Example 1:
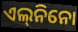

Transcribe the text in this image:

ଏଲ୍‌ନିନୋ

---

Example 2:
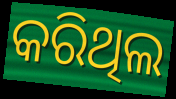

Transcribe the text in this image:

କରିଥିଲ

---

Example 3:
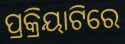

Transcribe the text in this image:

ପ୍ରକ୍ରିୟାଟିରେ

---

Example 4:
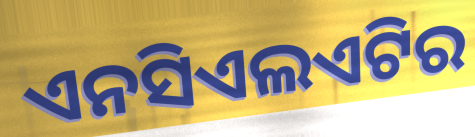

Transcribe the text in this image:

ଏନସିଏଲଏଟିର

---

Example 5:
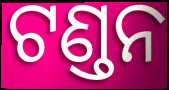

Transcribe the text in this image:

ଟଣ୍ଡନ